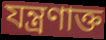
যন্ত্রণাক্ত